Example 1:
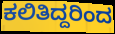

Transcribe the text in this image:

ಕಲಿತಿದ್ದರಿಂದ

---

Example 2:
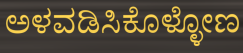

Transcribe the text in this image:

ಅಳವಡಿಸಿಕೊಳ್ಳೋಣ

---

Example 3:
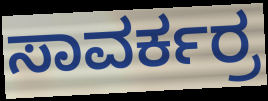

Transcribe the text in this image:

ಸಾವರ್ಕರ್ರ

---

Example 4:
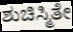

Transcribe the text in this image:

ಶುಚಿಸ್ಮಿತೇ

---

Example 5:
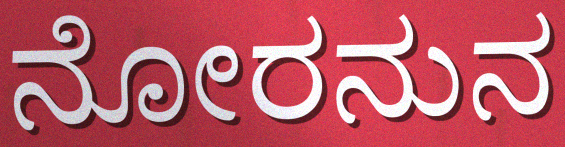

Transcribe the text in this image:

ನೋರನುನ